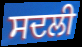
ਸਦਲੀ